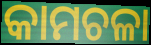
କାମଚଳା